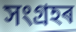
সংগ্ৰহৰ